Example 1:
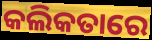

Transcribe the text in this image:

କଲିକତାରେ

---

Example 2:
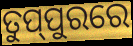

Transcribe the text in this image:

ତୁପ୍‌ପୁରରେ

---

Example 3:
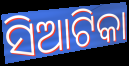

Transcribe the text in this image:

ସିଆଟିକା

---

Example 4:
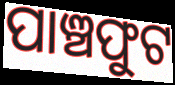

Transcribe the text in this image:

ପାଞ୍ଚଫୁଟ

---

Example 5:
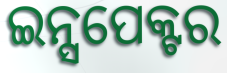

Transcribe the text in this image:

ଇନ୍ସପେକ୍ଟର